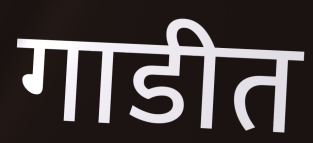
गाडीत